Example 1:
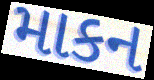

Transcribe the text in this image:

માકન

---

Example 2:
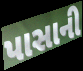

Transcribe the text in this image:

પાસાની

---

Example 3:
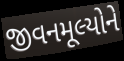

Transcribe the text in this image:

જીવનમૂલ્યોને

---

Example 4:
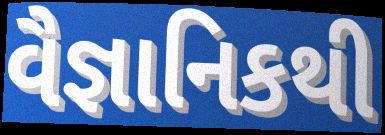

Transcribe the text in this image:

વૈજ્ઞાનિકથી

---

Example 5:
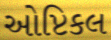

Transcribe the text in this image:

ઓપ્ટિકલ